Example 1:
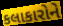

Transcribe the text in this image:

કલાકારોને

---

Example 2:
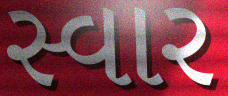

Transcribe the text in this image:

સ્વાર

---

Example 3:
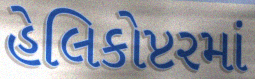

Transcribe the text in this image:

હેલિકોપ્ટરમાં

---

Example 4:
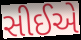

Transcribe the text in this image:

સીઈએ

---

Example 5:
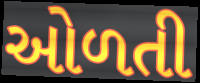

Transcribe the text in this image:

ઓળતી